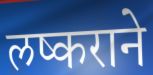
लष्कराने